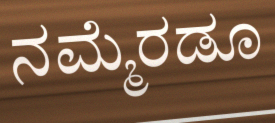
ನಮ್ಮೆರಡೂ